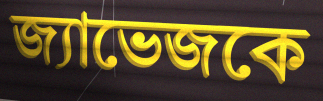
জ্যাভেজকে